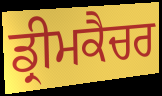
ਡ੍ਰੀਮਕੈਚਰ